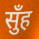
सुँह